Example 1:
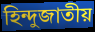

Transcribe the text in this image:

হিন্দুজাতীয়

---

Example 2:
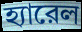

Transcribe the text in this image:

হ্যারেল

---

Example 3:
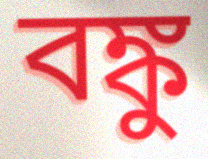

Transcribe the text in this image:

বঙ্কু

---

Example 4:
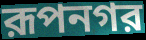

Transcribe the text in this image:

রূপনগর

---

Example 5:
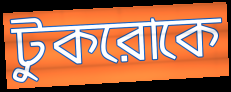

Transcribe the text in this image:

টুকরোকে